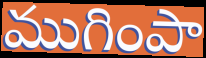
ముగింపా